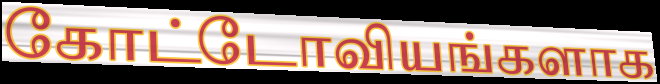
கோட்டோவியங்களாக